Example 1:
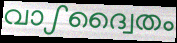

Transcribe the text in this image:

വാഽദ്വൈതം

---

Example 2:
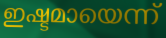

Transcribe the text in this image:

ഇഷ്ടമായെന്ന്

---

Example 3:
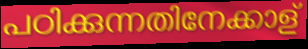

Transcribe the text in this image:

പഠിക്കുന്നതിനേക്കാള്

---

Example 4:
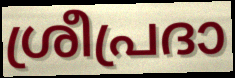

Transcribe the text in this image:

ശ്രീപ്രദാ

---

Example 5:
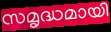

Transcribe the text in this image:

സമൃദ്ധമായി